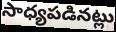
సాధ్యపడినట్లు